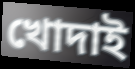
খোদাই